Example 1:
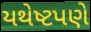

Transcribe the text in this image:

યથેષ્ટપણે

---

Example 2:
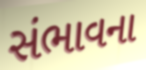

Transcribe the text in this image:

સંભાવના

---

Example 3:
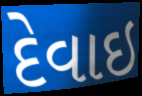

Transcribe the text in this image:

દેવાઇ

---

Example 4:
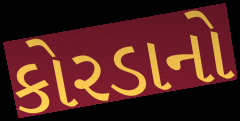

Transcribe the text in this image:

કોરડાનો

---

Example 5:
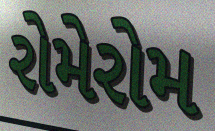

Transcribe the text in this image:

રોમેરોમ